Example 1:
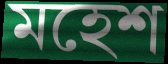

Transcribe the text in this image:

মহেশ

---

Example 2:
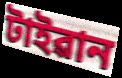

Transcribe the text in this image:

টাইৱান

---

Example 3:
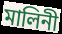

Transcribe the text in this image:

মালিনী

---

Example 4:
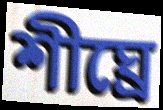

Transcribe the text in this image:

শীঘ্ৰে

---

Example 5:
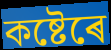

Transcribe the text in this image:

কষ্টেৰে